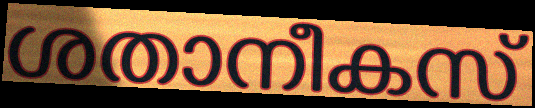
ശതാനീകസ്